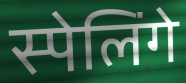
स्पेलिंगे